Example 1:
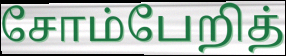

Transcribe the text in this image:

சோம்பேறித்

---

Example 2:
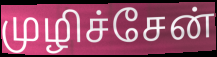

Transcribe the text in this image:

முழிச்சேன்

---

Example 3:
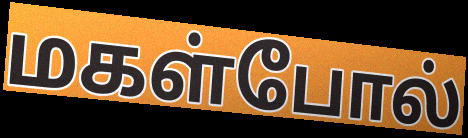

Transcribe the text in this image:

மகள்போல்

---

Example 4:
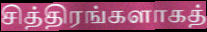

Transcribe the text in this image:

சித்திரங்களாகத்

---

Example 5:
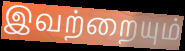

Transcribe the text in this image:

இவற்றையும்